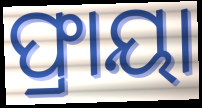
ଫ୍ରାୟା